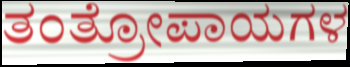
ತಂತ್ರೋಪಾಯಗಳ